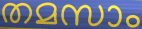
തമസാം